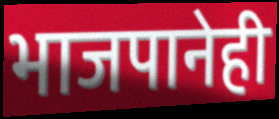
भाजपानेही